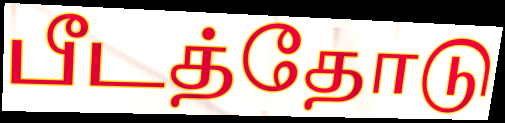
பீடத்தோடு